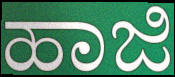
ಹಾಜಿ